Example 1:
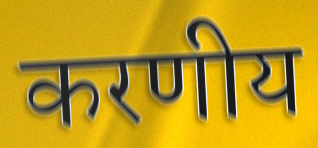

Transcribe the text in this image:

करणीय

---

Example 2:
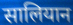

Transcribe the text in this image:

सालियान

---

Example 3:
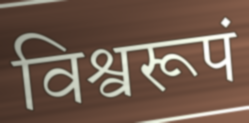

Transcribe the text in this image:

विश्वरूपं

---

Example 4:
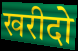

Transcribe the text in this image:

खरीदो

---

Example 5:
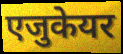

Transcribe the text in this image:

एजुकेयर